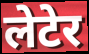
लेटेर